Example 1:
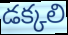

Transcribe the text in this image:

డక్కలి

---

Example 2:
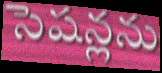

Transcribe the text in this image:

సెషన్లను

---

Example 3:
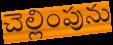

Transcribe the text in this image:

చెల్లింపును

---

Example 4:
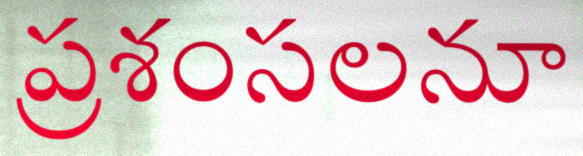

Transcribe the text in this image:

ప్రశంసలనూ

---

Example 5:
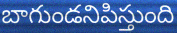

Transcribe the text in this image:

బాగుండనిపిస్తుంది